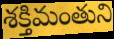
శక్తిమంతుని